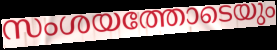
സംശയത്തോടെയും